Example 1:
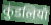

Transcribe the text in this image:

कुंडलियाँ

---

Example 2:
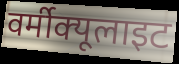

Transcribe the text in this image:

वर्मीक्यूलाइट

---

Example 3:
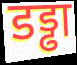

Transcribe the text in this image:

डड्ढा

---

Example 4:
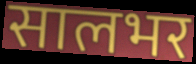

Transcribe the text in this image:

सालभर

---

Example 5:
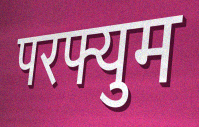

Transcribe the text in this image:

परफ्युम